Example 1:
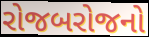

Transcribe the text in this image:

રોજબરોજનો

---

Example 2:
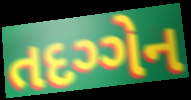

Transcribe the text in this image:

તદગ્ગેન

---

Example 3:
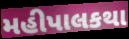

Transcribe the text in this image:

મહીપાલકથા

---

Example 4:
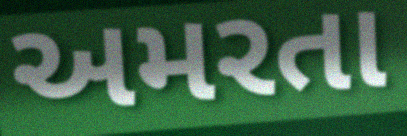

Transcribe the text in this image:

અમરતા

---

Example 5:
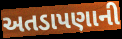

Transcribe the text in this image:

અતડાપણાની